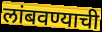
लांबवण्याची